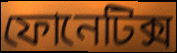
ফোনেটিক্স